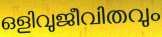
ഒളിവുജീവിതവും